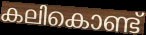
കലികൊണ്ട്